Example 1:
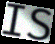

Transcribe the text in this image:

IS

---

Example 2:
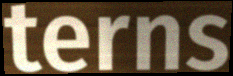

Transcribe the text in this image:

terns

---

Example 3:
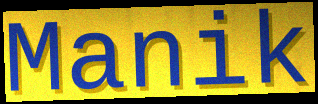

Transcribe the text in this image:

Manik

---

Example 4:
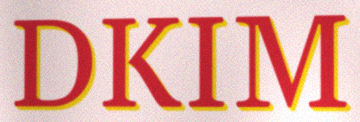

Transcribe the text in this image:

DKIM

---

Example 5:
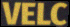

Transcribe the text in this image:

VELC